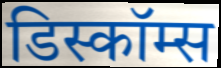
डिस्कॉम्स